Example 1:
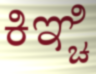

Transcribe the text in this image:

ಕಿಞ್ಚಿ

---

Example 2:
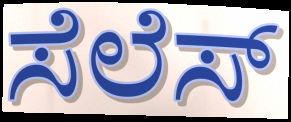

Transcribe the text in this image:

ಸೆಲೆಸ್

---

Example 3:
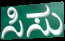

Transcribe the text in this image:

ಸಿಸು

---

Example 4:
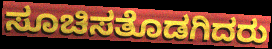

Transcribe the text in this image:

ಸೂಚಿಸತೊಡಗಿದರು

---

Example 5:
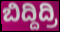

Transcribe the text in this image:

ಬಿದ್ದಿದ್ರಿ